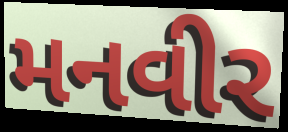
મનવીર